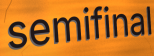
semifinal